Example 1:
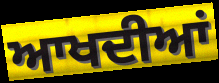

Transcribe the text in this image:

ਆਖਦੀਆਂ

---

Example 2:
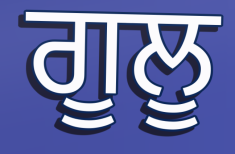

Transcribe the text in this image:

ਗੂਲੂ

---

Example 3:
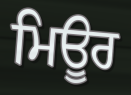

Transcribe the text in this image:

ਮਿਊਰ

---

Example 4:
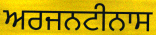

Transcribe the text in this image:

ਅਰਜਨਟੀਨਾਸ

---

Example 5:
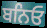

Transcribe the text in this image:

ਬਨਿਓ